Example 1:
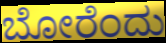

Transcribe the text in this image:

ಬೋರೆಂದು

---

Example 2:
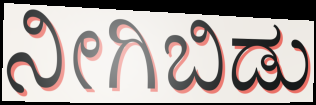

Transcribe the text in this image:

ನೀಗಿಬಿಡು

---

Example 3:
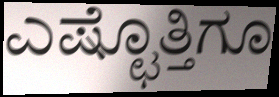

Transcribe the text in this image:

ಎಷ್ಟೊತ್ತಿಗೂ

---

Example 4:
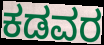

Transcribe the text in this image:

ಕಡವರ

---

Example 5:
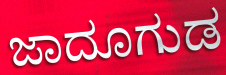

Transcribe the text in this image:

ಜಾದೂಗುಡ